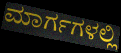
ಮಾರ್ಗಗಳಲ್ಲಿ